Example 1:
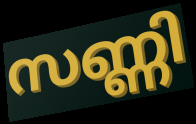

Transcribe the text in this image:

സണ്ണി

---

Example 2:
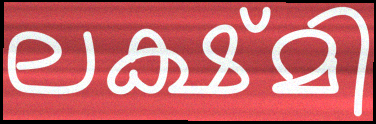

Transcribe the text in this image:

ലക്ഷ്മി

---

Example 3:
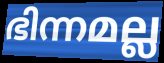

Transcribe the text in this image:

ഭിന്നമല്ല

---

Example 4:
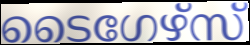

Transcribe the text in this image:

ടൈഗേഴ്സ്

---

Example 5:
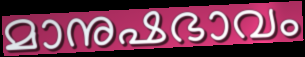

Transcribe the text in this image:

മാനുഷഭാവം